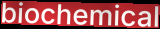
biochemical